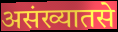
असंख्यातसे